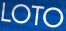
LOTO